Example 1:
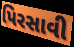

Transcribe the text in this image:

પિરસાવી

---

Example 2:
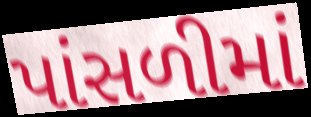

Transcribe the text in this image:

પાંસળીમાં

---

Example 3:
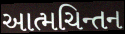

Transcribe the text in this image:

આત્મચિન્તન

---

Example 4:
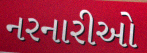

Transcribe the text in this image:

નરનારીઓ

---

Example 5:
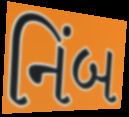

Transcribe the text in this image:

નિંબ